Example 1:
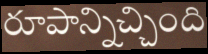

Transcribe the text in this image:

రూపాన్నిచ్చింది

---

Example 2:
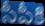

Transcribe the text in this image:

సీపీకి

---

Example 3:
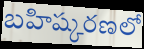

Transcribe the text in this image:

బహిష్కరణలో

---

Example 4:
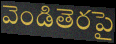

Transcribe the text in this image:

వెండితెరపై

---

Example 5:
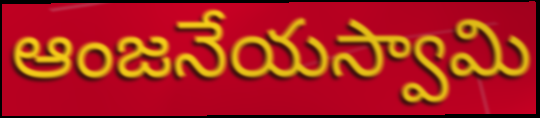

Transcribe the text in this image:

ఆంజనేయస్వామి